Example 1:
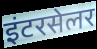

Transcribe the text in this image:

इंटरसेलर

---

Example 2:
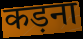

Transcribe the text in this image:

कड़ना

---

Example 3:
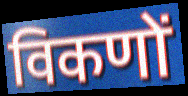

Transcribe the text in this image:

विकणों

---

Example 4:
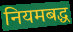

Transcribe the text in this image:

नियमबद्ध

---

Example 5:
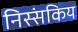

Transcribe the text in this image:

निस्संकिय